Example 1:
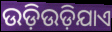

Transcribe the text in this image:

ଉଡ଼ିଉଡ଼ିଯାଏ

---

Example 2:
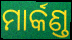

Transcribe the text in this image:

ମାର୍କଣ୍ଡ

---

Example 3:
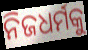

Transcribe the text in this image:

ନିଜଧର୍ମକୁ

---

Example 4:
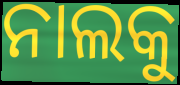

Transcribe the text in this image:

ନାଲକୁ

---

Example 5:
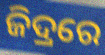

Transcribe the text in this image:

ଜିଦ୍ରରେ